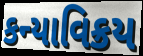
કન્યાવિક્રય